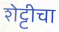
शेट्टीचा